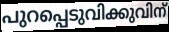
പുറപ്പെടുവിക്കുവിന്